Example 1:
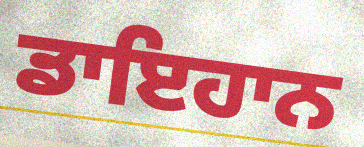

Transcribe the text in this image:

ਡਾਇਹਾਨ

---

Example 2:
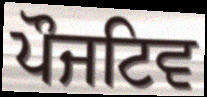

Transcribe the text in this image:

ਪੌਜਟਿਵ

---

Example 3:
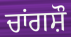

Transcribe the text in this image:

ਚਾਂਗਸ਼ੌ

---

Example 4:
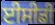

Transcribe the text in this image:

ਈਸੀਡੀ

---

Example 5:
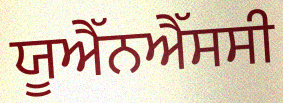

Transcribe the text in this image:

ਯੂਐੱਨਐੱਸਸੀ